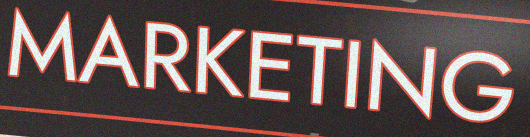
MARKETING